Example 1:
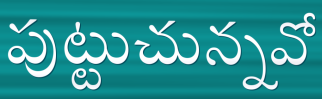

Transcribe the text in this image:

పుట్టుచున్నవో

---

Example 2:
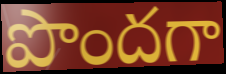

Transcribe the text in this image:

పొందగా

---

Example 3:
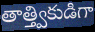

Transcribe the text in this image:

తాత్త్వికుడిగా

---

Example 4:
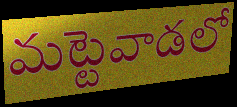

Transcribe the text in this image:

మట్టెవాడలో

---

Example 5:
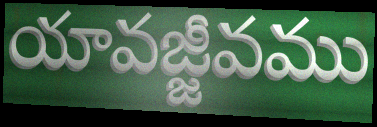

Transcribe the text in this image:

యావజ్జీవము